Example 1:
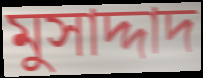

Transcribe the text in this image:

মুসাদ্দাদ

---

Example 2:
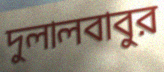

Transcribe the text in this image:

দুলালবাবুর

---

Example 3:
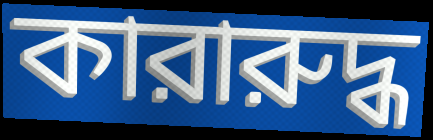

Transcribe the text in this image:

কারারুদ্ধ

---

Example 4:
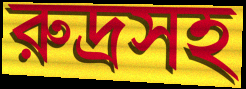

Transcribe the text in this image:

রুদ্রসহ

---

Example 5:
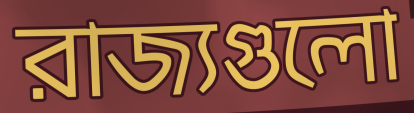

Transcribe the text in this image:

রাজ্যগুলো